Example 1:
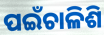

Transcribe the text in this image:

ପଇଁଚାଳିଶି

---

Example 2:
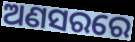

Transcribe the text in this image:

ଅଣସରରେ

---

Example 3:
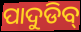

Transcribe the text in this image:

ପାଦୁଡିବ୍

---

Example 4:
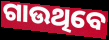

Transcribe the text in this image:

ଗାଉଥିବେ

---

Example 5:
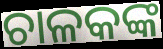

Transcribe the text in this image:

ଚାଳକଙ୍କ